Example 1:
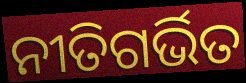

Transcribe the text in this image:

ନୀତିଗର୍ଭିତ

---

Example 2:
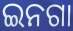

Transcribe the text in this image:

ଇନଗା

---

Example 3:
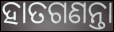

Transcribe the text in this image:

ହାତଗଣନ୍ତା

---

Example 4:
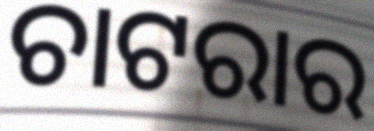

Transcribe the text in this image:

ଚାଟରାର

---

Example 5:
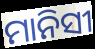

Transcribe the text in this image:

ମାନିସୀ